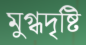
মুগ্ধদৃষ্টি